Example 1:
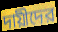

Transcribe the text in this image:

দায়ীদের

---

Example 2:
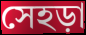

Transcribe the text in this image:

সেহড়া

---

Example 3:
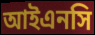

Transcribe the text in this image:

আইএনসি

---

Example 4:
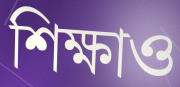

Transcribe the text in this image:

শিক্ষাও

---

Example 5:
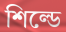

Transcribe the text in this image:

শিল্ডে